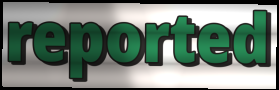
reported